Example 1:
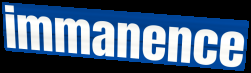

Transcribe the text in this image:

immanence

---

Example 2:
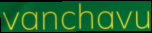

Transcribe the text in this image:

vanchavu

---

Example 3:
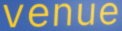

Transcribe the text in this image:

venue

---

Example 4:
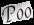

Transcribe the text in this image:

Poo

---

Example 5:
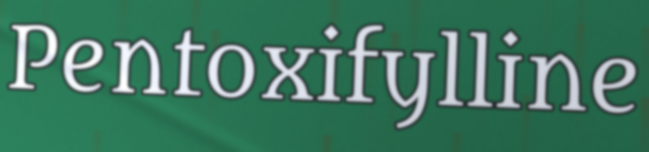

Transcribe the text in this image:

Pentoxifylline